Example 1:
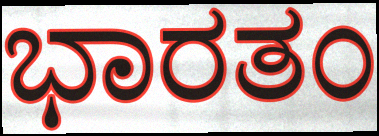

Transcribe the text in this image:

ಭಾರತಂ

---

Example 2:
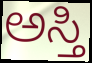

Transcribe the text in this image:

ಅಸ್ತಿ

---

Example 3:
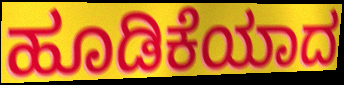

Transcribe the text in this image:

ಹೂಡಿಕೆಯಾದ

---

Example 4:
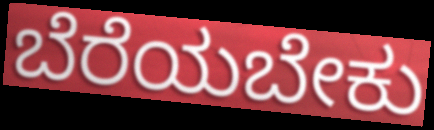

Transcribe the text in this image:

ಬೆರೆಯಬೇಕು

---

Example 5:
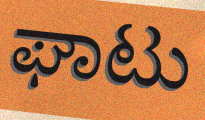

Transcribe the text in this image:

ಘಾಟು